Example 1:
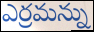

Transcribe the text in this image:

ఎర్రమన్ను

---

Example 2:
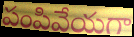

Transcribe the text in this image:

పంపివేయగా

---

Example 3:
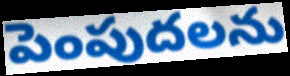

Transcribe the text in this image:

పెంపుదలను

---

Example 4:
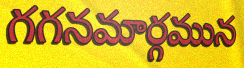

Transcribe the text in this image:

గగనమార్గమున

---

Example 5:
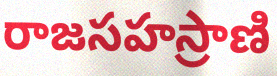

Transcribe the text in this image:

రాజసహస్రాణి